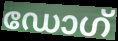
ഡോഗ്